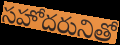
సహోదరునితో